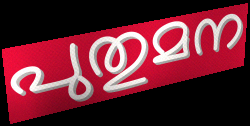
പുതുമന